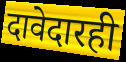
दावेदारही